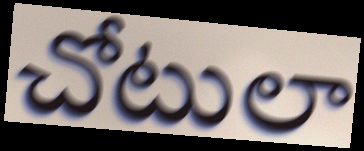
చోటులా